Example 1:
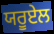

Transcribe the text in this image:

ਯਰੂਏਲ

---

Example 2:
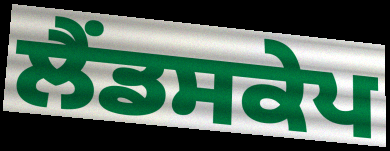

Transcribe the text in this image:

ਲੈਂਡਸਕੇਪ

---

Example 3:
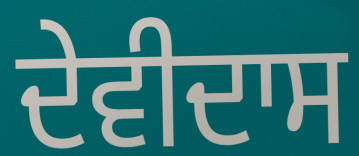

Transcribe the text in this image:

ਦੇਵੀਦਾਸ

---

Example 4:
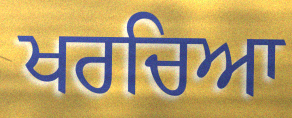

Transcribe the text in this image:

ਖਰਚਿਆ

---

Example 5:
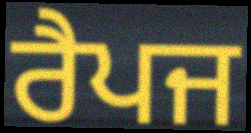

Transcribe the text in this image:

ਰੈਪਜ